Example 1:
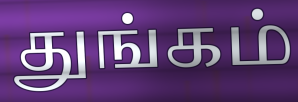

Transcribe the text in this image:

துங்கம்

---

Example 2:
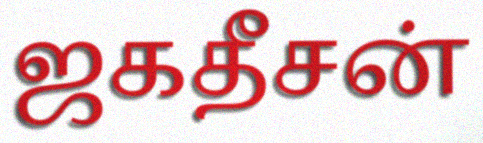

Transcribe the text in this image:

ஜகதீசன்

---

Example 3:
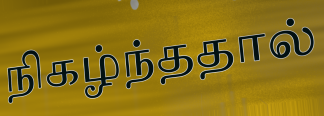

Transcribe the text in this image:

நிகழ்ந்ததால்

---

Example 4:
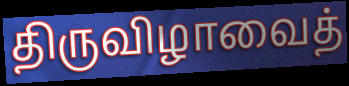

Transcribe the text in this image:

திருவிழாவைத்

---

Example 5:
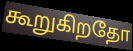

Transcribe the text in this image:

கூறுகிறதோ